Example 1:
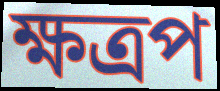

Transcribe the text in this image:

ক্ষত্রপ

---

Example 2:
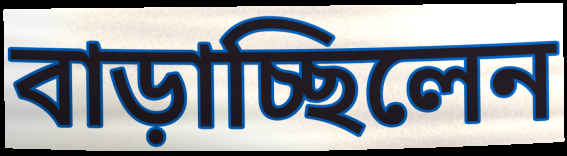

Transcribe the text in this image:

বাড়াচ্ছিলেন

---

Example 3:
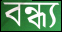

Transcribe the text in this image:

বন্ধ্য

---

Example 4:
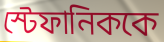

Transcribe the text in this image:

স্টেফানিককে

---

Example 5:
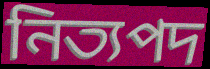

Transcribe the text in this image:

নিত্যপদ